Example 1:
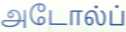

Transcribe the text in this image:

அடோல்ப்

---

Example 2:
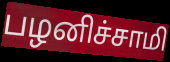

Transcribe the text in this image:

பழனிச்சாமி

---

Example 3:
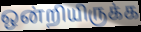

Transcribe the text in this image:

ஒன்றியிருக்க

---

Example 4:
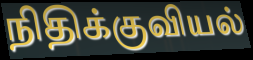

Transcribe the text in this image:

நிதிக்குவியல்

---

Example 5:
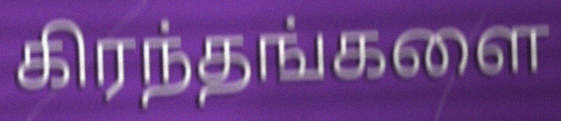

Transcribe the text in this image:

கிரந்தங்களை